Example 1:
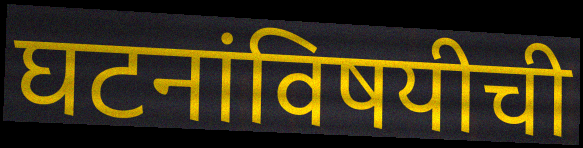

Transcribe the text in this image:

घटनांविषयीची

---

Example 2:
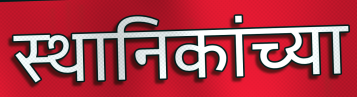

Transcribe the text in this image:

स्थानिकांच्या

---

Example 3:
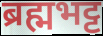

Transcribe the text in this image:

ब्रह्मभट्ट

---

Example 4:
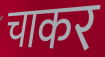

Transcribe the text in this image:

चाकर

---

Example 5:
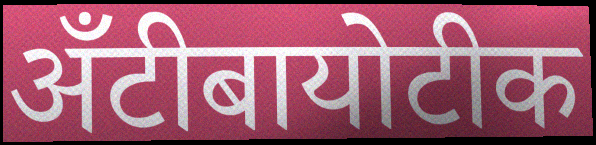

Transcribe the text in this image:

अँटीबायोटीक